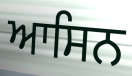
ਆਸਿਨ